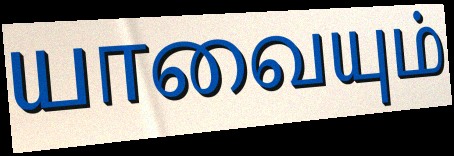
யாவையும்